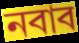
নবাব